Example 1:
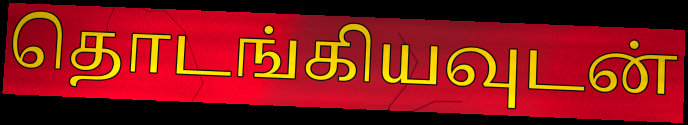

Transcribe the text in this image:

தொடங்கியவுடன்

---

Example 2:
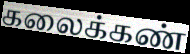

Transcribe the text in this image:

கலைக்கண்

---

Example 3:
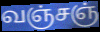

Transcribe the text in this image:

வஞ்சஞ்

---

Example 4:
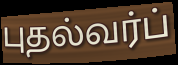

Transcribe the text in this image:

புதல்வர்ப்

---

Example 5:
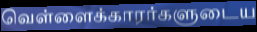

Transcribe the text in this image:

வெள்ளைக்காரர்களுடைய